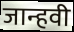
जान्हवी